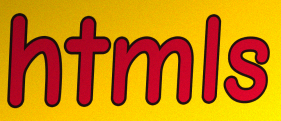
htmls